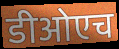
डीओएच